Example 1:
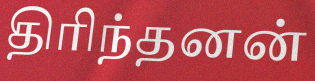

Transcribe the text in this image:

திரிந்தனன்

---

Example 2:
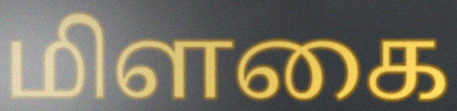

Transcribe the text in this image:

மிளகை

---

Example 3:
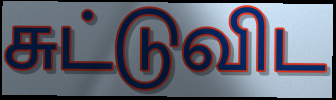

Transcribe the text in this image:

சுட்டுவிட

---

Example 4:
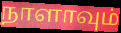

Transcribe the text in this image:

நாளாவும்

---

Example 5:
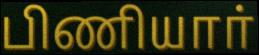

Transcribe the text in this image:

பிணியார்